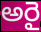
అరై